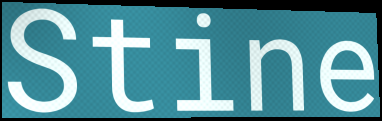
Stine